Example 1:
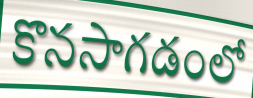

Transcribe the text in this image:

కొనసాగడంలో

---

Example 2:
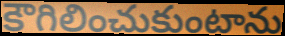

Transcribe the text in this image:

కౌగిలించుకుంటాను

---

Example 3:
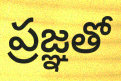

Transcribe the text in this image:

ప్రజ్ఞతో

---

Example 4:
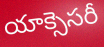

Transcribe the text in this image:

యాక్సెసరీ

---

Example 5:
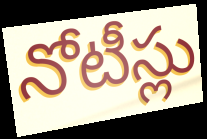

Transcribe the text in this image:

నోటీస్లు